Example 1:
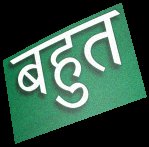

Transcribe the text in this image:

बहुत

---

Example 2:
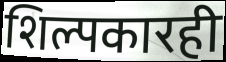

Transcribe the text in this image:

शिल्पकारही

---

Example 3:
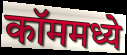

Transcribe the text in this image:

कॉममध्ये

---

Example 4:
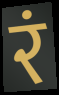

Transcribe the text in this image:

रं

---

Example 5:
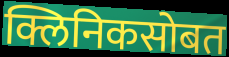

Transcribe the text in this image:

क्लिनिकसोबत